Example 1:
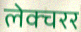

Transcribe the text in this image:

लेक्‍चरर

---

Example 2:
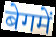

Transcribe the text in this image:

बेगमें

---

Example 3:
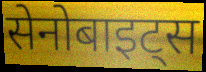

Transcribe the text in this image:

सेनोबाइट्स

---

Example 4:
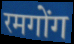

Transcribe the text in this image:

रमगोंग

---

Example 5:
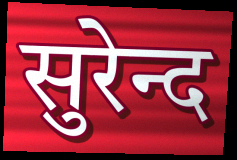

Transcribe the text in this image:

सुरेन्द